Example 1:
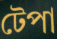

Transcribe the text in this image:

টেপা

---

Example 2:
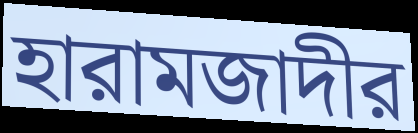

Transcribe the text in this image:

হারামজাদীর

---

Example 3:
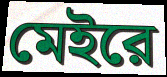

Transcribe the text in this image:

মেইরে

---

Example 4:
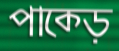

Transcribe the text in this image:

পাক্ড়ে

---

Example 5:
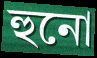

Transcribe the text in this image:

হুনো